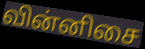
வின்னிசை